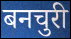
बनचुरी